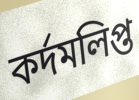
কর্দমলিপ্ত